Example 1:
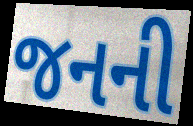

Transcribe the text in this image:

જનની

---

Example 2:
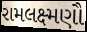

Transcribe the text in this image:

રામલક્ષ્મણૌ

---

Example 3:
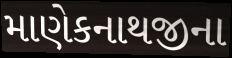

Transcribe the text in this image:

માણેકનાથજીના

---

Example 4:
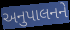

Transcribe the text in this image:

અનુપાલનને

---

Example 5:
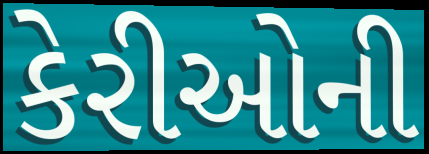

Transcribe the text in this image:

કેરીઓની